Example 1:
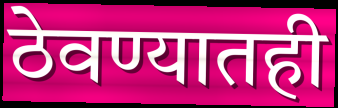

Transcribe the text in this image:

ठेवण्यातही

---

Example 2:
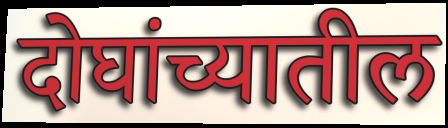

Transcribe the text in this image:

दोघांच्यातील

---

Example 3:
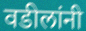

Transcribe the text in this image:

वडीलांनी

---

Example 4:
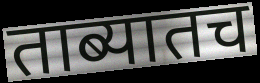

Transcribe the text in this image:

ताब्यातच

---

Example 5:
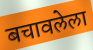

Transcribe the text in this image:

बचावलेला